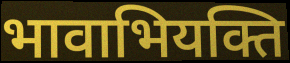
भावाभियक्ति